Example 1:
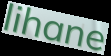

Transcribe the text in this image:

lihane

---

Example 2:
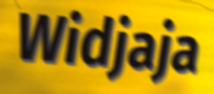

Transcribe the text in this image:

Widjaja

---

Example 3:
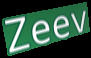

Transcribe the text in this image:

Zeev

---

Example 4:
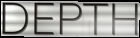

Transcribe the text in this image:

DEPTH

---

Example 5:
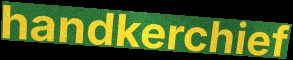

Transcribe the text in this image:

handkerchief